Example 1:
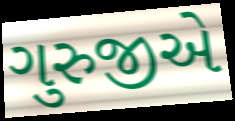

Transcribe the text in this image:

ગુરુજીએ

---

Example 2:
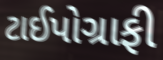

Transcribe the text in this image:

ટાઈપોગ્રાફી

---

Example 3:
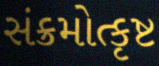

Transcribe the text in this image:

સંક્રમોત્કૃષ્ટ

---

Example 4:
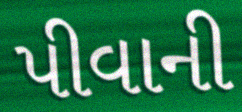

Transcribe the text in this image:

પીવાની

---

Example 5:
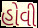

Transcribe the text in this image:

હોવી